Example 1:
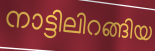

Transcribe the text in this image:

നാട്ടിലിറങ്ങിയ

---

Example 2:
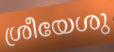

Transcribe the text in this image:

ശ്രീയേശു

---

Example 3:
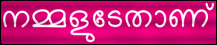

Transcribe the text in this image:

നമ്മളുടേതാണ്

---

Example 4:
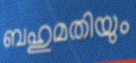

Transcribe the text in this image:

ബഹുമതിയും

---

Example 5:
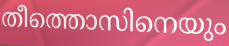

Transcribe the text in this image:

തീത്തൊസിനെയും